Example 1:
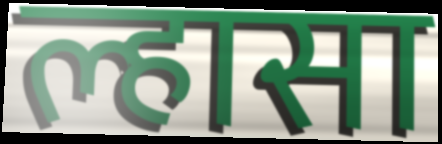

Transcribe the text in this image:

ल्हासा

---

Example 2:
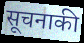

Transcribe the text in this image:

सूचनाकी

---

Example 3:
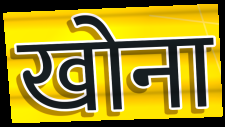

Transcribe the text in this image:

खोना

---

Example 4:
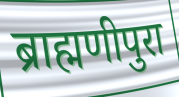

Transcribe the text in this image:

ब्राह्मणीपुरा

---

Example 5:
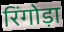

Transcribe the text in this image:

रिंगोड़ा